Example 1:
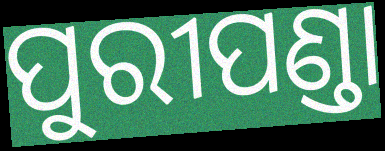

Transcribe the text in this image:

ପୁରୀପଣ୍ଡା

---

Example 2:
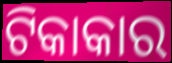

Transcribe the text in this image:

ଟିକାକାର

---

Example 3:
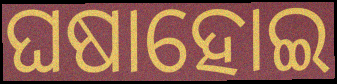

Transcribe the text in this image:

ଘଷାହୋଇ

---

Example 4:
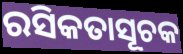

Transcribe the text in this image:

ରସିକତାସୂଚକ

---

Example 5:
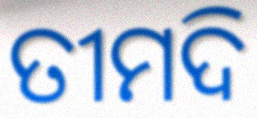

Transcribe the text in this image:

ତୀମଦି